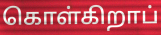
கொள்கிறாப்